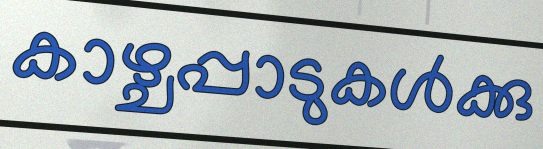
കാഴ്ചപ്പാടുകൾക്കു